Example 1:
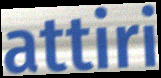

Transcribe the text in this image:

attiri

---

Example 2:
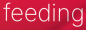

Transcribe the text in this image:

feeding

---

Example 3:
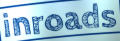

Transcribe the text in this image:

inroads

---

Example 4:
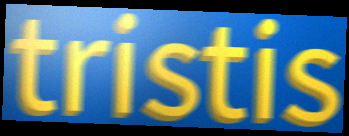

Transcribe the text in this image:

tristis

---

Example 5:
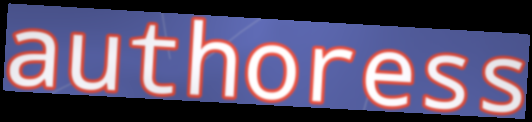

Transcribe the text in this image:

authoress